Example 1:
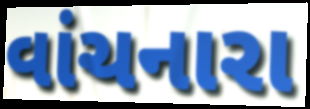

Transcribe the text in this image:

વાંચનારા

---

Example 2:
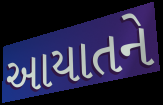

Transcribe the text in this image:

આયાતને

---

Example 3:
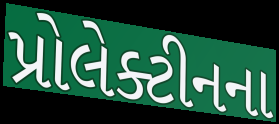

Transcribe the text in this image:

પ્રોલેક્ટીનના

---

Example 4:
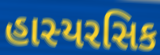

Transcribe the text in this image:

હાસ્યરસિક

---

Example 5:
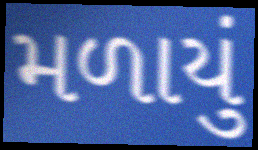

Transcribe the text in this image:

મળાયું